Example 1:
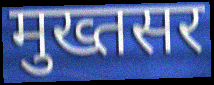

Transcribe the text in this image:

मुख्तसर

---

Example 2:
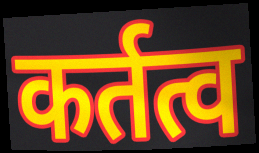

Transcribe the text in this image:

कर्तत्व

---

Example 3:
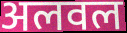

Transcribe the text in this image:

अलवल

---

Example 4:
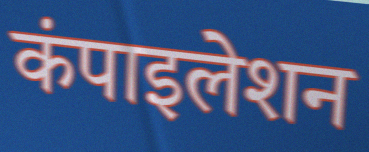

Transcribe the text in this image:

कंपाइलेशन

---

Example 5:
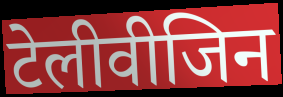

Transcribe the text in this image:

टेलीवीजिन